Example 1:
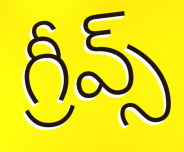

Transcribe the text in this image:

గ్రీవ్స్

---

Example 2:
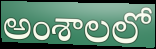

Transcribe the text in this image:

అంశాలలో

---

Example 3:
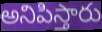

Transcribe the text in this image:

అనిపిస్తారు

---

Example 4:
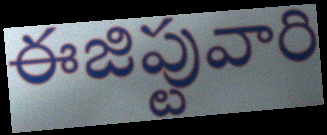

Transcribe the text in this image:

ఈజిప్టువారి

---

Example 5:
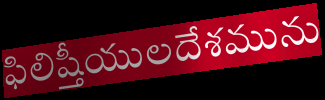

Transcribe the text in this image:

ఫిలిష్తీయులదేశమును